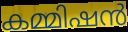
കമ്മിഷൻ